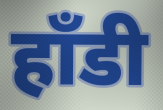
हाँडी